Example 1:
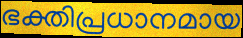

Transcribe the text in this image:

ഭക്തിപ്രധാനമായ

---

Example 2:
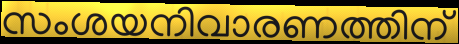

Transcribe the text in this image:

സംശയനിവാരണത്തിന്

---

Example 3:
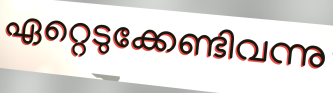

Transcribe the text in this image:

ഏറ്റെടുക്കേണ്ടിവന്നു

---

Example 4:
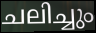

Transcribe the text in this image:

ചലിച്ചും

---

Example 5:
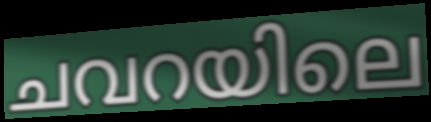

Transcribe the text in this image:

ചവറയിലെ